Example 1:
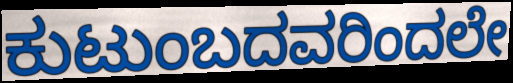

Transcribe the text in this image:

ಕುಟುಂಬದವರಿಂದಲೇ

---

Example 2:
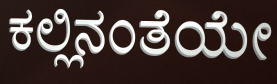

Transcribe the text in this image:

ಕಲ್ಲಿನಂತೆಯೇ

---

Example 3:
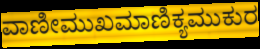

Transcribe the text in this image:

ವಾಣೀಮುಖಮಾಣಿಕ್ಯಮುಕುರ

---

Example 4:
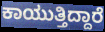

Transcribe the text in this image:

ಕಾಯುತ್ತಿದ್ದಾರೆ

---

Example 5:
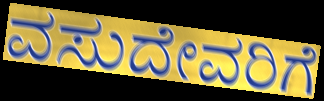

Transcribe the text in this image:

ವಸುದೇವರಿಗೆ